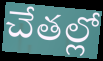
చేతల్లో